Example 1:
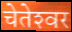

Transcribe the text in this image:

चेतेश्वर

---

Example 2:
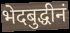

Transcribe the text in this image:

भेदबुद्धीनं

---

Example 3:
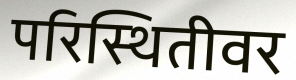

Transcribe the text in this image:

परिस्थितीवर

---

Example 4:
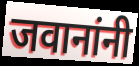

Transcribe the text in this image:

जवानांनी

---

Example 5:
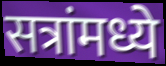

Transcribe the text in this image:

सत्रांमध्ये